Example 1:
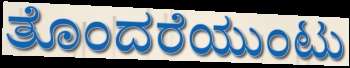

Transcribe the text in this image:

ತೊಂದರೆಯುಂಟು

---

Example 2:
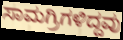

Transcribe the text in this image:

ಸಾಮಗ್ರಿಗಳಿದ್ದವು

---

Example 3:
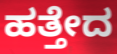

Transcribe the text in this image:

ಹತ್ತೇದ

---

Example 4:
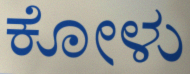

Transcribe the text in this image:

ಕೋಳು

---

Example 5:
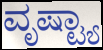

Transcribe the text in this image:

ವೃಷ್ಟ್ಯಾ